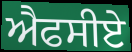
ਐਫਸੀਏ